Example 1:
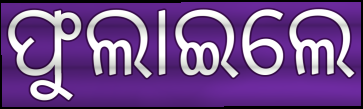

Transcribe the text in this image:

ଫୁଲାଇଲେ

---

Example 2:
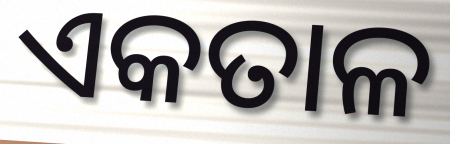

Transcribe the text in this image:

ଏକତାଳ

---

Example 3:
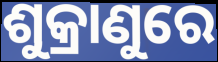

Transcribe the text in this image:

ଶୁକ୍ରାଣୁରେ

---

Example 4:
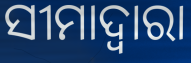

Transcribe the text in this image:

ସୀମାଦ୍ଵାରା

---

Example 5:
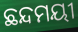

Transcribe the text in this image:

ଛନ୍ଦମୟୀ